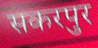
सकरपुर